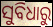
ସୁବିଧାରୁ